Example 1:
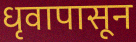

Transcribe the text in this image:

धृवापासून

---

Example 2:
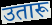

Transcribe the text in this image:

उतारू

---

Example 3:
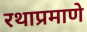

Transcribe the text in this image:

रथाप्रमाणे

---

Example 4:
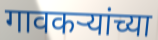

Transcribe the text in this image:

गावकऱ्यांच्या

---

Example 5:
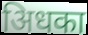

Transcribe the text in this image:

अिधका